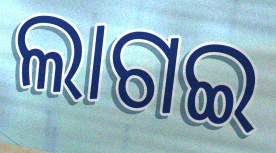
ଲାଗଇ